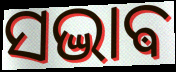
ସଦ୍ଭାଵ